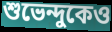
শুভেন্দুকেও